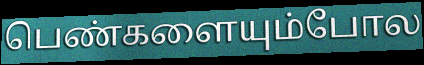
பெண்களையும்போல